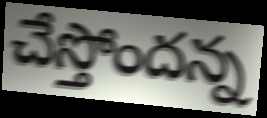
చేస్తోందన్న